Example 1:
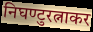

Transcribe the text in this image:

निघण्टुरत्नाकर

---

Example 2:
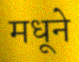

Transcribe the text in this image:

मधूने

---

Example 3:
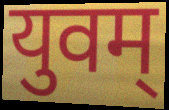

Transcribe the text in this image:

युवम्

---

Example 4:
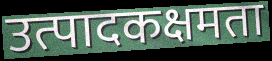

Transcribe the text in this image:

उत्पादकक्षमता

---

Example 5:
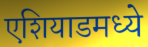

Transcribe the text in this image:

एशियाडमध्ये